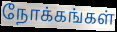
நோக்கங்கள்